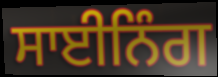
ਸਾਈਨਿੰਗ